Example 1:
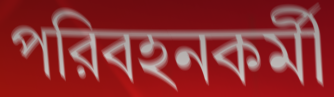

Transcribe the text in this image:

পরিবহনকর্মী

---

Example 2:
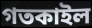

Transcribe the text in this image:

গতকাইল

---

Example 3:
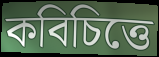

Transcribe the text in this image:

কবিচিত্তে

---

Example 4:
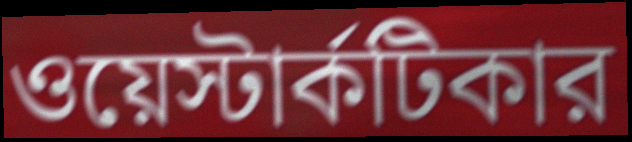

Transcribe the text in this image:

ওয়েস্টার্কটিকার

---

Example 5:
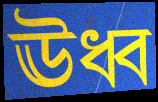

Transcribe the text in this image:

ঊধ্ব